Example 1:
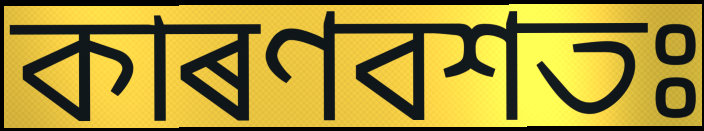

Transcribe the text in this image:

কাৰণবশতঃ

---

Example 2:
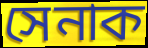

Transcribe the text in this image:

সেনাক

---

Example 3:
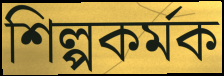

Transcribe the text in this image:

শিল্পকৰ্মক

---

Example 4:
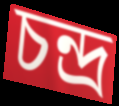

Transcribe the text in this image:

চন্দ্ৰ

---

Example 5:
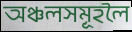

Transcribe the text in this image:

অঞ্চলসমূহলৈ